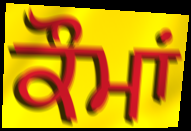
ਕੌਮਾਂ